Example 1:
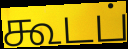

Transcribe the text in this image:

கூடப்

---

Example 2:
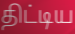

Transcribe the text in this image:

திட்டிய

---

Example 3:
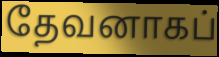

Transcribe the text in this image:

தேவனாகப்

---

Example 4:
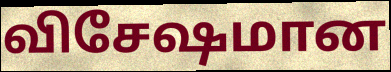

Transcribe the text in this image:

விசேஷமான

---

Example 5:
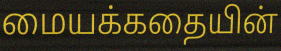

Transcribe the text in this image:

மையக்கதையின்